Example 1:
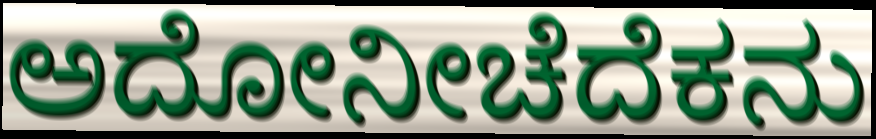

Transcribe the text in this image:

ಅದೋನೀಚೆದೆಕನು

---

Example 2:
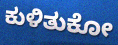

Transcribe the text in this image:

ಕುಳಿತುಕೋ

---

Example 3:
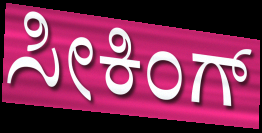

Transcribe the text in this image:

ಸೀಕಿಂಗ್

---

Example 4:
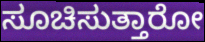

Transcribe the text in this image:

ಸೂಚಿಸುತ್ತಾರೋ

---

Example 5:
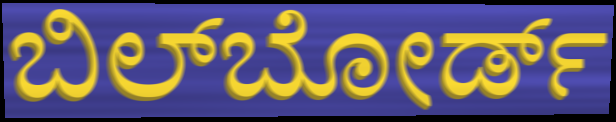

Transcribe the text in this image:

ಬಿಲ್‌ಬೋರ್ಡ್